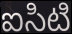
ఐసిటి